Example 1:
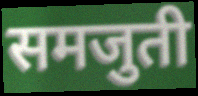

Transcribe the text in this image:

समजुती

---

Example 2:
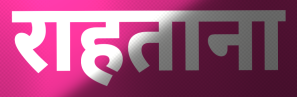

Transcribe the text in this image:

राहताना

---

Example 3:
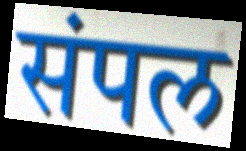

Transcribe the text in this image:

संपल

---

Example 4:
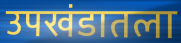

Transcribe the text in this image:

उपखंडातला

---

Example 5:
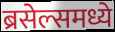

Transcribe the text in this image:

ब्रसेल्समध्ये